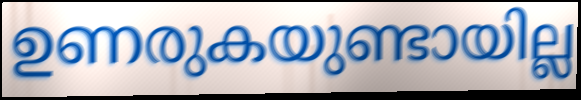
ഉണരുകയുണ്ടായില്ല